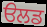
ੳਲਡ